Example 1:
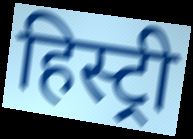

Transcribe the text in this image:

हिस्ट्री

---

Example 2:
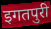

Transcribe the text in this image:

इगतपुरी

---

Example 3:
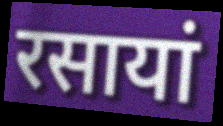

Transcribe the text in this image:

रसायां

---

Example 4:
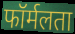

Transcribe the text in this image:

फॉर्मलता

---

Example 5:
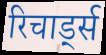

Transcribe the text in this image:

रिचार्ड्स